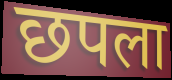
छपला